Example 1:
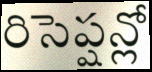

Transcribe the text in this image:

రిసెప్షన్లో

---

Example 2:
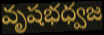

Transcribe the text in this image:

వృషభధ్వజ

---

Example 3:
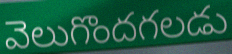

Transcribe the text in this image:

వెలుగొందగలడు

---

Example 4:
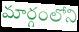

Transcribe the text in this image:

మార్గంలోని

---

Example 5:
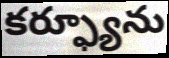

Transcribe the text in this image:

కర్ఫ్యూను